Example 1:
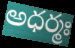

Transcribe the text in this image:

అధర్మః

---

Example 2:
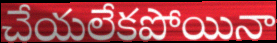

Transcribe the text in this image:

చేయలేకపోయినా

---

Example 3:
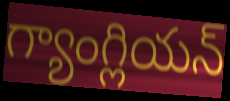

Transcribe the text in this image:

గ్యాంగ్లియన్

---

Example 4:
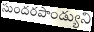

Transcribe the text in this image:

సుందరపాండ్యుని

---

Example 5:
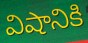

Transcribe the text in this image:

విషానికి